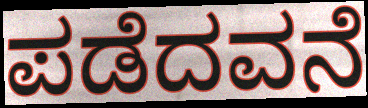
ಪಡೆದವನೆ